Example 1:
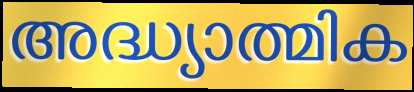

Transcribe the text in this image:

അദ്ധ്യാത്മിക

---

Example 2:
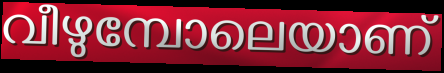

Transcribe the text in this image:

വീഴുമ്പോലെയാണ്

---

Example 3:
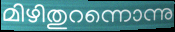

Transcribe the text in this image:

മിഴിതുറന്നൊന്നു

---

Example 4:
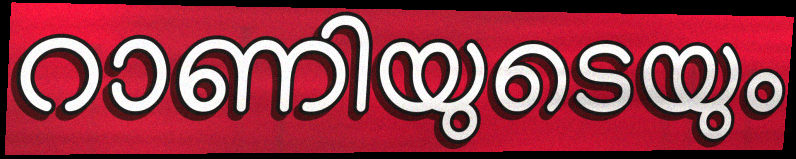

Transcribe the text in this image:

റാണിയുടെയും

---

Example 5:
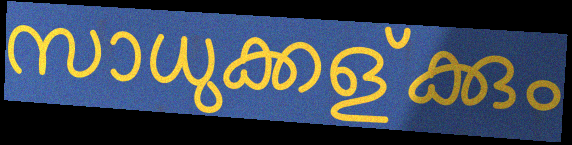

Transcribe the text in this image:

സാധുക്കള്ക്കും